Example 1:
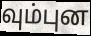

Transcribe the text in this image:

வும்புன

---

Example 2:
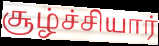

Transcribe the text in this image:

சூழ்ச்சியார்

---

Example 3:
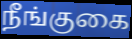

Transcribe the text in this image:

நீங்குகை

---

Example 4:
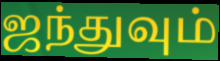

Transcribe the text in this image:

ஜந்துவும்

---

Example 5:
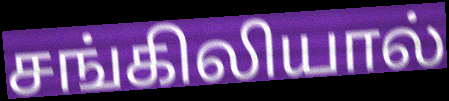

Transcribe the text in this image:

சங்கிலியால்